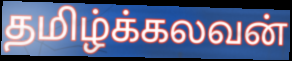
தமிழ்க்கலவன்